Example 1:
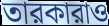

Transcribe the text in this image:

তারকারাও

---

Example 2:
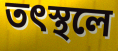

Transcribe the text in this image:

তৎস্থলে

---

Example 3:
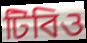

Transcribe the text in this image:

টিবিও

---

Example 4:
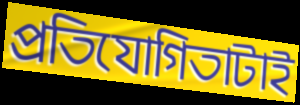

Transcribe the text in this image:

প্রতিযোগিতাটাই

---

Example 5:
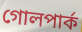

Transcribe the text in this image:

গোলপার্ক